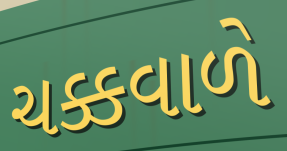
ચક્કવાળે